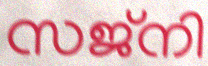
സജ്നി